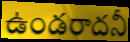
ఉండరాదనీ